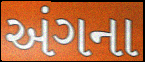
અંગના